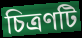
চিত্রণটি